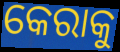
କେରାକୁ